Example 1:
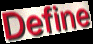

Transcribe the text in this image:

Define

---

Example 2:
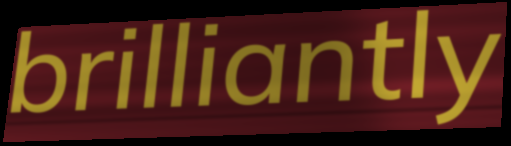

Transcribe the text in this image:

brilliantly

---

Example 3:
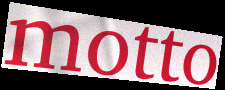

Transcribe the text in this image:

motto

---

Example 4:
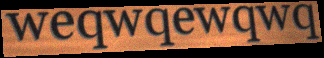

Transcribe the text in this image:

weqwqewqwq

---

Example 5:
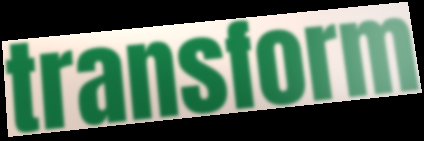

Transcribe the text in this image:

transform